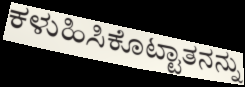
ಕಳುಹಿಸಿಕೊಟ್ಟಾತನನ್ನು